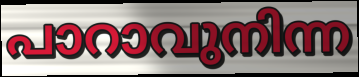
പാറാവുനിന്ന